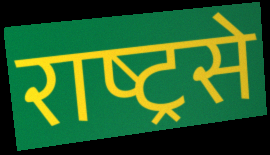
राष्ट्रसे